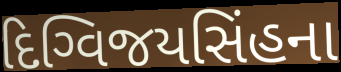
દિગ્વિજયસિંહના